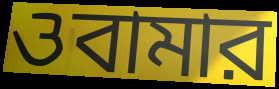
ওবামার